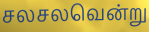
சலசலவென்று